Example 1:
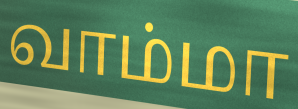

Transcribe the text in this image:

வாம்மா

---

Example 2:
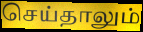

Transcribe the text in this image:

செய்தாலும்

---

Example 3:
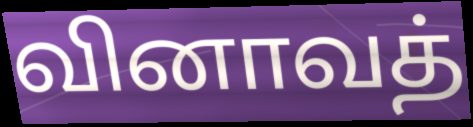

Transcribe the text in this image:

வினாவத்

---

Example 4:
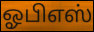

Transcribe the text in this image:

ஓபிஎஸ்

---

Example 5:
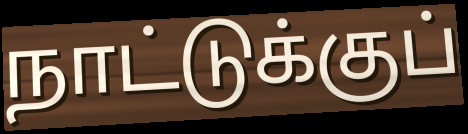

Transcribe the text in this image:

நாட்டுக்குப்